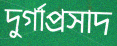
দুৰ্গাপ্ৰসাদ